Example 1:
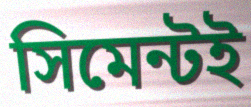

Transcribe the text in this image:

সিমেন্টই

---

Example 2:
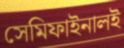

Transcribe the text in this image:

সেমিফাইনালই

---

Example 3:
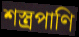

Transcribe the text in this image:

শস্ত্রপাণি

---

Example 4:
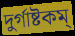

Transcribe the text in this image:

দুর্গাষ্টকম্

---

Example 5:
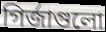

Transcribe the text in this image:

গির্জাগুলো